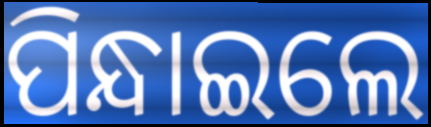
ପିନ୍ଧାଇଲେ